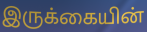
இருக்கையின்